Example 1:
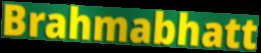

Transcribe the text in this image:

Brahmabhatt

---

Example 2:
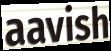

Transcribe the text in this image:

aavish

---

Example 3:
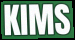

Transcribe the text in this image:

KIMS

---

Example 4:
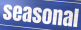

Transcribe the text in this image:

seasonal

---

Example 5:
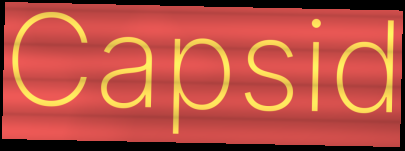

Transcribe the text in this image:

Capsid